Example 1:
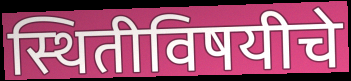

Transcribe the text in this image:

स्थितीविषयीचे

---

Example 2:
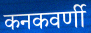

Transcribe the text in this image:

कनकवर्णी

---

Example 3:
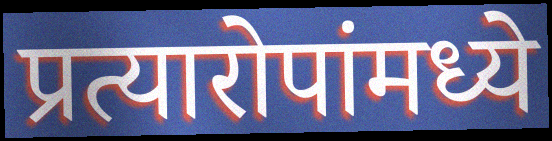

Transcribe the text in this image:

प्रत्यारोपांमध्ये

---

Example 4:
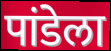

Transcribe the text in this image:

पांडेला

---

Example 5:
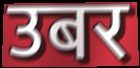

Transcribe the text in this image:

उबर